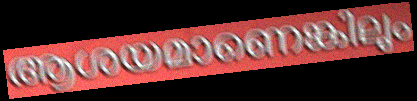
ആശയമാണെങ്കിലും